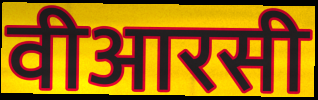
वीआरसी